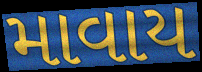
માવાય